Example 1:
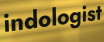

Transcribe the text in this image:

indologist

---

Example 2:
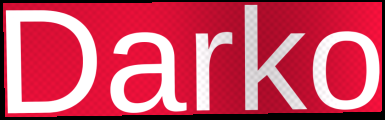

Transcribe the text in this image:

Darko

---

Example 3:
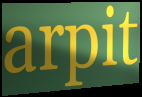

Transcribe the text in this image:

arpit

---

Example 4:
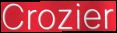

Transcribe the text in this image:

Crozier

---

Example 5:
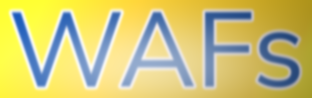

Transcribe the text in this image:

WAFs